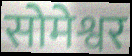
सोमेश्वर